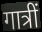
गात्रीं